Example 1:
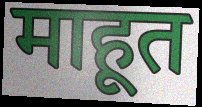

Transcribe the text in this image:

माहूत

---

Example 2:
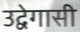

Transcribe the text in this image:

उद्वेगासी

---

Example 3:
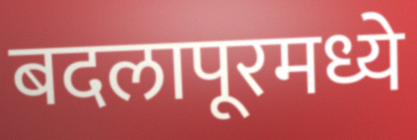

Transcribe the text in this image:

बदलापूरमध्ये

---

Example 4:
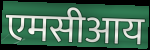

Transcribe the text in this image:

एमसीआय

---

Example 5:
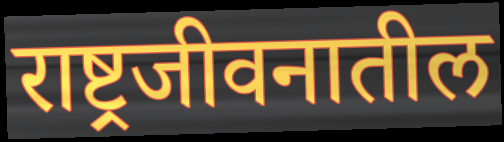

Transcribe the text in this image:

राष्ट्रजीवनातील